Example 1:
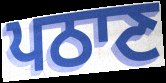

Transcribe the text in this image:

ਪਠਾਣ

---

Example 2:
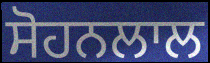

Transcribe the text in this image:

ਸੋਹਨਲਾਲ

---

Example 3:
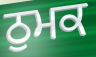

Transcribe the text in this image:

ਠੁਮਕ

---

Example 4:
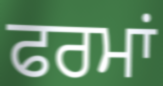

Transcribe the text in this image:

ਫਰਮਾਂ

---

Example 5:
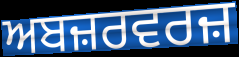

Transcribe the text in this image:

ਅਬਜ਼ਰਵਰਜ਼